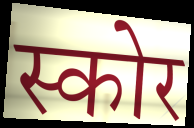
स्कोर